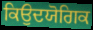
ਕਿਉਦਯੋਗਿਕ